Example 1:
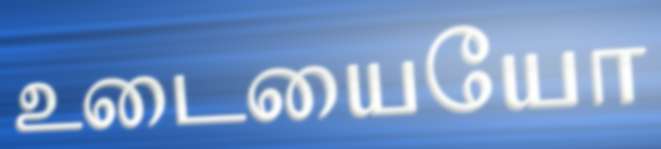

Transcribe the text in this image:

உடையையோ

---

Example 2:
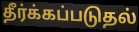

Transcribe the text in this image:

தீர்க்கப்படுதல்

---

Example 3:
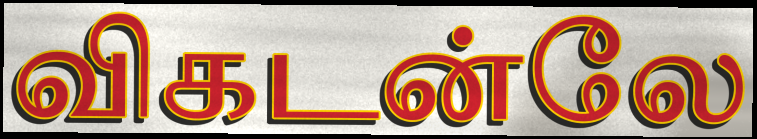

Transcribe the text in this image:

விகடன்லே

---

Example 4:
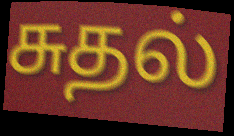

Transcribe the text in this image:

சுதல்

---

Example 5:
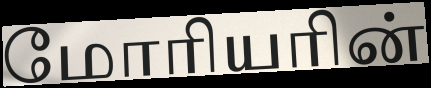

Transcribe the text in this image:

மோரியரின்